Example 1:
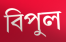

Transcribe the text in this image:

বিপুল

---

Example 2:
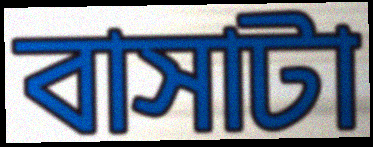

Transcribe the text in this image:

বাসাটা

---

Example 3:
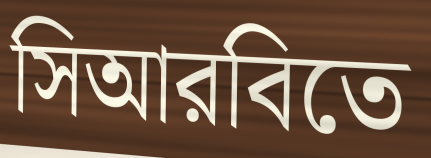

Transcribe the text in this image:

সিআরবিতে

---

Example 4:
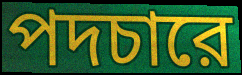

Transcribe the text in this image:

পদচারে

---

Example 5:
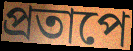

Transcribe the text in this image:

প্রতাপে